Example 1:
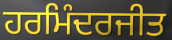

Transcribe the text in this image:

ਹਰਮਿੰਦਰਜੀਤ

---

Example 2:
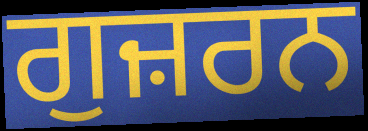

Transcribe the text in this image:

ਗੁਜ਼ਰਨ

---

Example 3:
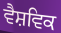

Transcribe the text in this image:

ਵੈਸ਼ਵਿਕ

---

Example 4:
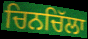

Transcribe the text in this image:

ਚਿਨਚਿੱਲਾ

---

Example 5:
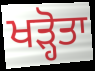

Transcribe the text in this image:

ਖੜ੍ਹੋਤਾ